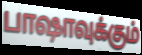
பாஷாவுக்கும்